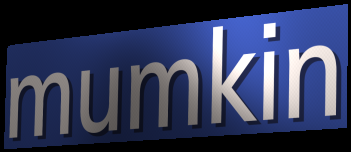
mumkin